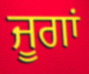
ਜੂਗਾਂ